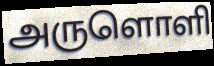
அருளொளி